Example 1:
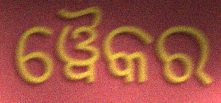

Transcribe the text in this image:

ୱୈକର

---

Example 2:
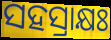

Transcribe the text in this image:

ସହସ୍ରାକ୍ଷଃ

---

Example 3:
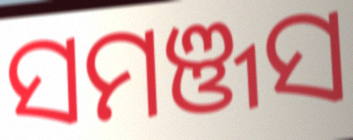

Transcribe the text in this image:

ସମଞ୍ଜସ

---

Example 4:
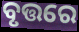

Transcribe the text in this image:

ବୃତ୍ତରେ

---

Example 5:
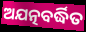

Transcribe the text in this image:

ଅଯତ୍ନବର୍ଦ୍ଧିତ